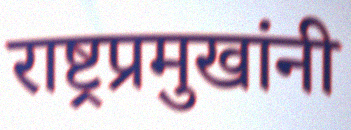
राष्ट्रप्रमुखांनी